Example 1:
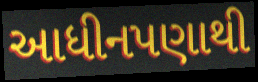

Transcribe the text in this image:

આધીનપણાથી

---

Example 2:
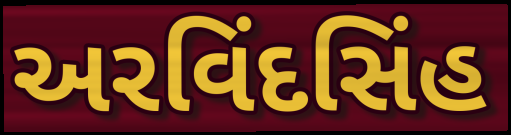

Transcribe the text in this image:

અરવિંદસિંહ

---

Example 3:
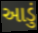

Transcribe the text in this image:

આડું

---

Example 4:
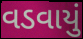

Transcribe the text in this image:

વડવાયું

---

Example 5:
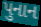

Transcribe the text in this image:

પુનાન